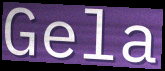
Gela